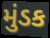
મુંડક